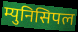
म्युनिसिपल